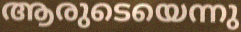
ആരുടെയെന്നു